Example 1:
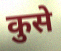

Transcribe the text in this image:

कुसे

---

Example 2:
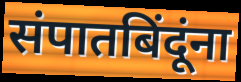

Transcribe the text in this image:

संपातबिंदूंना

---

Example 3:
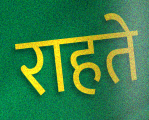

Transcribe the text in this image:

राहते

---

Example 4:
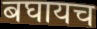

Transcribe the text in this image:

बघायच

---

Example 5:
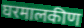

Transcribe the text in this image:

घरमालकीण